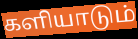
களியாடும்